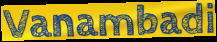
Vanambadi